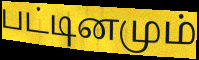
பட்டினமும்